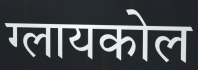
ग्लायकोल